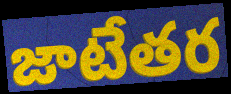
జాటేతర